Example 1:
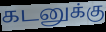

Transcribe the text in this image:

கடனுக்கு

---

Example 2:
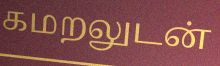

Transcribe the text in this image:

கமறலுடன்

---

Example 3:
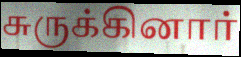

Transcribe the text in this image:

சுருக்கினார்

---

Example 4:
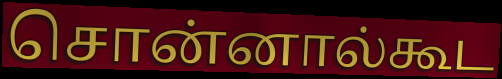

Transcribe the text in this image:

சொன்னால்கூட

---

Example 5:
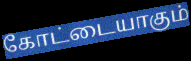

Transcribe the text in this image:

கோட்டையாகும்